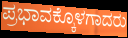
ಪ್ರಭಾವಕ್ಕೊಳಗಾದರು